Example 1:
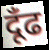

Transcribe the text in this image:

दूँढ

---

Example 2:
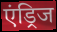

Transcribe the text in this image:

एंड्रिज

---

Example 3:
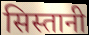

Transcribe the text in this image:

सिस्तानी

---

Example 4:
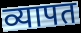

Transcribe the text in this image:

व्यापत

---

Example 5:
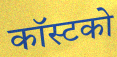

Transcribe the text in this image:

कॉस्टको